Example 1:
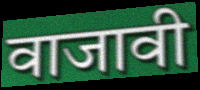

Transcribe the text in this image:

वाजावी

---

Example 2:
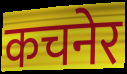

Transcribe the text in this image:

कचनेर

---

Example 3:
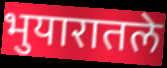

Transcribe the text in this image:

भुयारातले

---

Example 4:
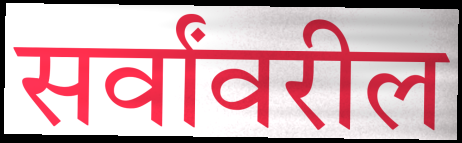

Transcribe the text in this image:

सर्वांवरील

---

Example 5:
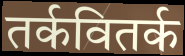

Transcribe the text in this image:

तर्कवितर्क